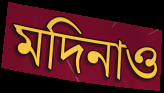
মদিনাও